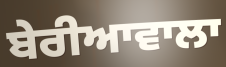
ਬੇਰੀਆਵਾਲਾ